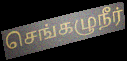
செங்கழுநீர்